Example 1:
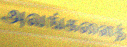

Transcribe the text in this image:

அவங்களைத்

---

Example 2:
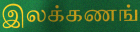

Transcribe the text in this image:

இலக்கணங்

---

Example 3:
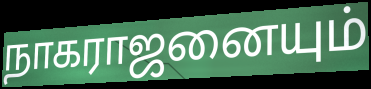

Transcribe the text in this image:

நாகராஜனையும்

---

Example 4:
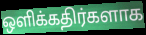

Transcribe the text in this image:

ஒளிக்கதிர்களாக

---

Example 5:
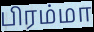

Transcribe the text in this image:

பிரம்மா